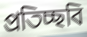
প্ৰতিচ্ছবি